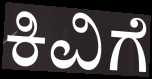
ಕಿವಿಗೆ